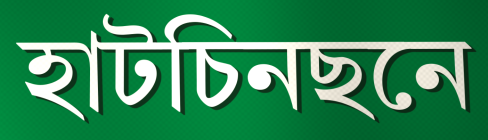
হাটচিনছনে